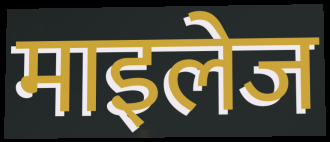
माइलेज